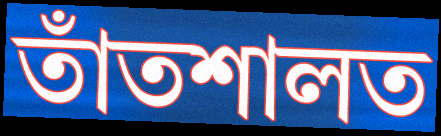
তাঁতশালত